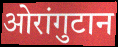
ओरांगुटान